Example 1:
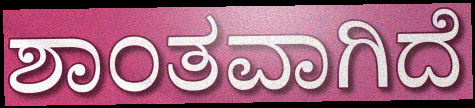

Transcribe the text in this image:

ಶಾಂತವಾಗಿದೆ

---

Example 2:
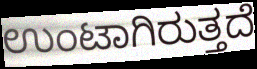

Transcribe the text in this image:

ಉಂಟಾಗಿರುತ್ತದೆ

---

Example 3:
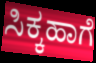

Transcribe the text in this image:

ಸಿಕ್ಕಹಾಗೆ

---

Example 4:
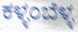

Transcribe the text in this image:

ಕಳ್ಳಂಬೆಳ್ಳ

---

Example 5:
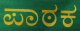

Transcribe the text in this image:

ಪಾಠಕ